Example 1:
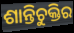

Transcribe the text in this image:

ଶାନ୍ତିଚୁକ୍ତିର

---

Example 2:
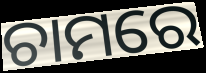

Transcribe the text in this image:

ଚାମରେ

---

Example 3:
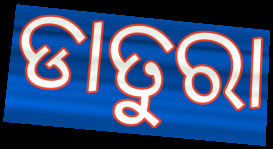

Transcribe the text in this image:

ଡାତୁରା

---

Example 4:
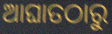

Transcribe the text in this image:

ଆଘାତଠାରୁ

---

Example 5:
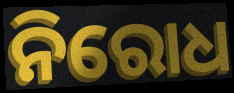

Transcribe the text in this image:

ନିରୋଧ